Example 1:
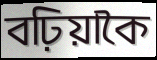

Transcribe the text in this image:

বঢ়িয়াকৈ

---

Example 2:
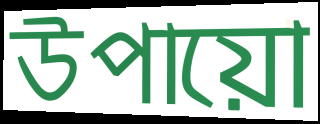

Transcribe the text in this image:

উপায়ো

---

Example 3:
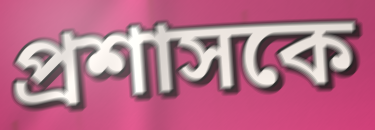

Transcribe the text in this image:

প্ৰশাসকে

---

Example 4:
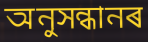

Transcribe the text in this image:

অনুসন্ধানৰ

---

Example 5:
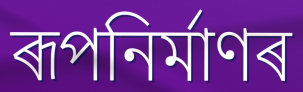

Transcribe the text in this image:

ৰূপনিৰ্মাণৰ